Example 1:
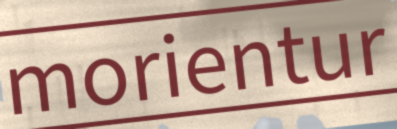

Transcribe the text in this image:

morientur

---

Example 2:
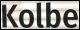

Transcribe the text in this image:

Kolbe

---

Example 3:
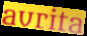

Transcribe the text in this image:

aurita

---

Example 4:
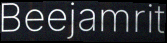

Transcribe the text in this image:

Beejamrit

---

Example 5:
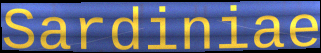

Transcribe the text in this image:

Sardiniae